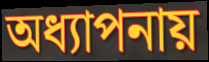
অধ্যাপনায়